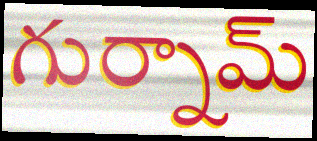
గుర్నామ్